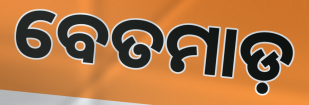
ବେତମାଡ଼